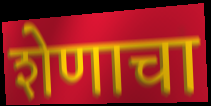
शेणाचा